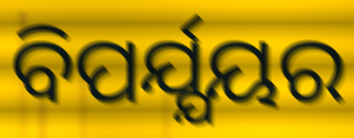
ବିପର୍ଯ୍ଯୟର